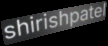
shirishpatel